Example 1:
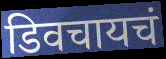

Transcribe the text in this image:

डिवचायचं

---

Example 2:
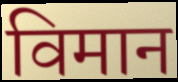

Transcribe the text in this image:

विमान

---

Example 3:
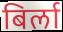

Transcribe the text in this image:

बिर्ला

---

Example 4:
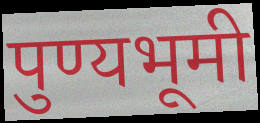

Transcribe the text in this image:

पुण्यभूमी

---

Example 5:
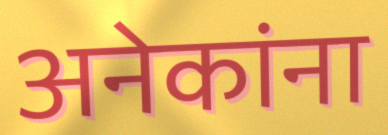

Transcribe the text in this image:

अनेकांना